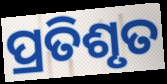
ପ୍ରତିଶୃତ